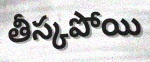
తీస్కపోయి